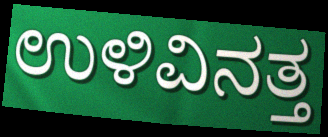
ಉಳಿವಿನತ್ತ